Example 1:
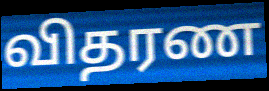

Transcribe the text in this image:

விதரண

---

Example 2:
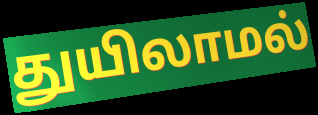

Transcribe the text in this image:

துயிலாமல்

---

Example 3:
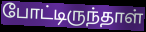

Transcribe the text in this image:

போட்டிருந்தாள்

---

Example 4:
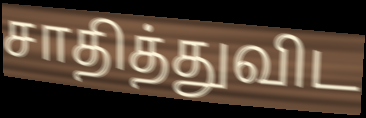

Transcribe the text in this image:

சாதித்துவிட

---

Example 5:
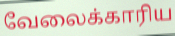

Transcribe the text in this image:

வேலைக்காரிய